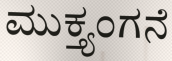
ಮುಕ್ತ್ಯಂಗನೆ